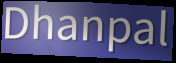
Dhanpal